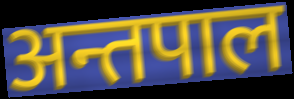
अन्तपाल